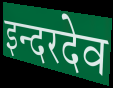
इन्दरदेव